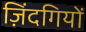
ज़िंदगियों